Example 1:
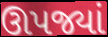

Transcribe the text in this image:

ઊપજ્યાં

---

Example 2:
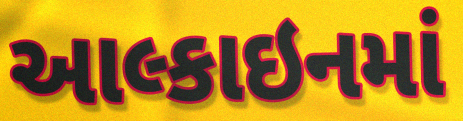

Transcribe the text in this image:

આલ્કાઇનમાં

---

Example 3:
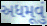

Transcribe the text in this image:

અધમૂવું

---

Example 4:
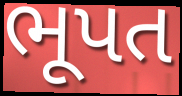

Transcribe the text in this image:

ભૂપત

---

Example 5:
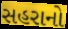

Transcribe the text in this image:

સહરાનો